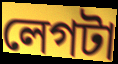
লেগটা